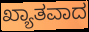
ಖ್ಯಾತವಾದ